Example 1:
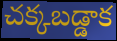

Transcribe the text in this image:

చక్కబడ్డాక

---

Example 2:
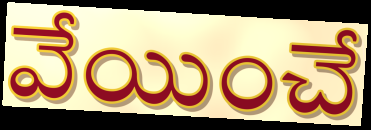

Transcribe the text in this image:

వేయించే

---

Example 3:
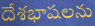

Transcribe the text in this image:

దేశభాషలను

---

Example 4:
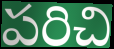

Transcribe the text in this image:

పరిచి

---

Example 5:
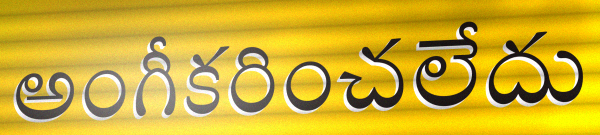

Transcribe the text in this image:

అంగీకరించలేదు